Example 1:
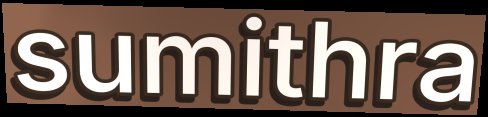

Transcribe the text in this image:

sumithra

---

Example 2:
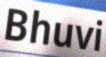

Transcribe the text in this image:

Bhuvi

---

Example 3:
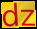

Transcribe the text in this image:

dz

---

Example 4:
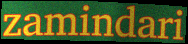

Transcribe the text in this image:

zamindari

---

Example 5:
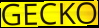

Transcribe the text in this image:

GECKO